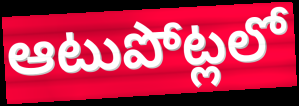
ఆటుపోట్లలో